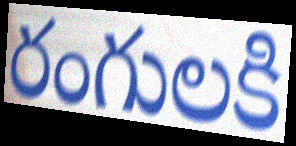
రంగులకి